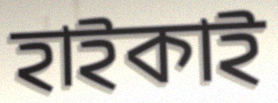
হাইকাই